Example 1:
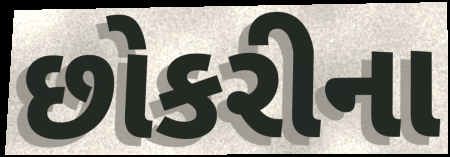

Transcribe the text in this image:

છોકરીના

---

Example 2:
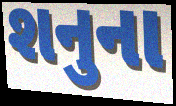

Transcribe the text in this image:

શનુના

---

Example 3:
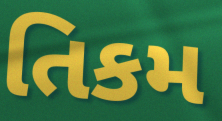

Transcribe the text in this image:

તિકમ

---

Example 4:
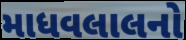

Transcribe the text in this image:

માધવલાલનો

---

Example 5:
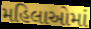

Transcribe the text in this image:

મહિલાઓમાં